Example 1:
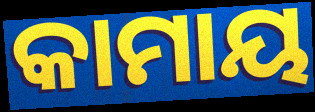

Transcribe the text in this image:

କାମାୟ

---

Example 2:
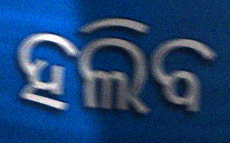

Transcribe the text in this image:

ହଲିବ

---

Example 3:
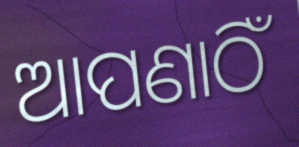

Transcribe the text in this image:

ଆପଣାଠିଁ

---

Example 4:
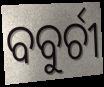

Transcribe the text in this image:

ବବୁର୍ଚୀ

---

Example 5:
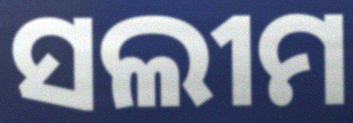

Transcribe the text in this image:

ସଲୀମ